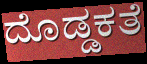
ದೊಡ್ಡಕತೆ